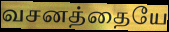
வசனத்தையே